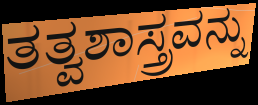
ತತ್ವಶಾಸ್ತ್ರವನ್ನು